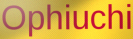
Ophiuchi